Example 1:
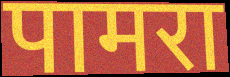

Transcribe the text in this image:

पामरा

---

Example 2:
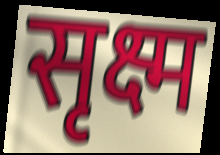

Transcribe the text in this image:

सृक्ष्म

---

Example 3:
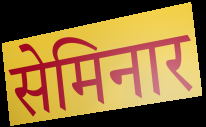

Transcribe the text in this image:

सेमिनार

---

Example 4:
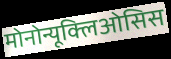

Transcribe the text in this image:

मोनोन्यूक्लिओसिस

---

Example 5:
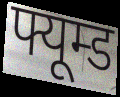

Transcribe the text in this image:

फ्यूम्ड